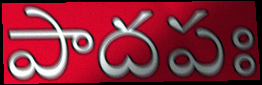
పాదపః